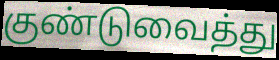
குண்டுவைத்து